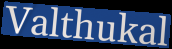
Valthukal